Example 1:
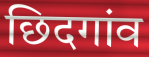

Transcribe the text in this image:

छिदगांव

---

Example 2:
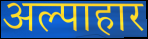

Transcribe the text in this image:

अल्पाहार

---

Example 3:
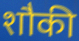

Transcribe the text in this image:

शौकी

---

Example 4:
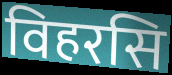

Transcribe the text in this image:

विहरसि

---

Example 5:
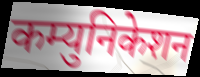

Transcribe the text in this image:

कम्युनिकेशन